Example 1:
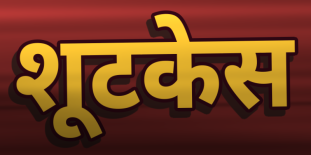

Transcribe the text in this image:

शूटकेस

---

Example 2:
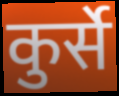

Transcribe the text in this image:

कुर्से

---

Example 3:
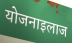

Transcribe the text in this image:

योजनाइलाज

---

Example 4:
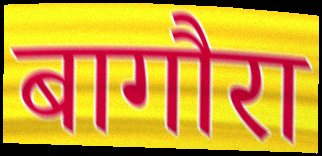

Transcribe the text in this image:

बागौरा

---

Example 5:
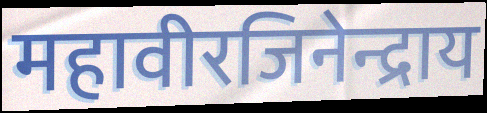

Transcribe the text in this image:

महावीरजिनेन्द्राय